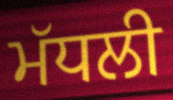
ਮੱਧਲੀ